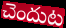
చెందుట